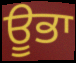
ਊਭਾ